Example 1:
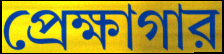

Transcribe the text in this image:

প্রেক্ষাগার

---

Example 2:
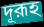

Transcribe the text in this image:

দূরূহ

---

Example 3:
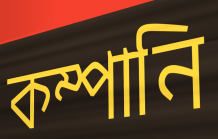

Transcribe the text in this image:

কম্পানি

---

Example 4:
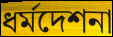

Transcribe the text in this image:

ধর্মদেশনা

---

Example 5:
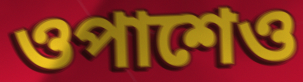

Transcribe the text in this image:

ওপাশেও